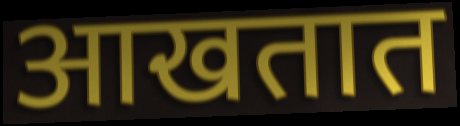
आखतात